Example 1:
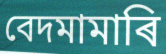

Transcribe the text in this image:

বেদমামাৰি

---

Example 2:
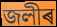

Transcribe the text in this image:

জলীৰ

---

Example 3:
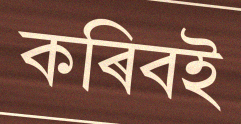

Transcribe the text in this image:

কৰিবই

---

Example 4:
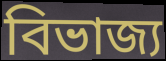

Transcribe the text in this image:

বিভাজ্য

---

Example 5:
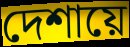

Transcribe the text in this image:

দেশায়ে